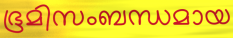
ഭൂമിസംബന്ധമായ